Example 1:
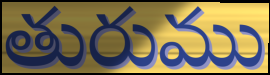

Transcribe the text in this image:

తురుము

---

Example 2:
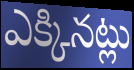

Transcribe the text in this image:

ఎక్కినట్లు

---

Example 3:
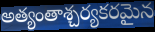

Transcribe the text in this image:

అత్యంతాశ్చర్యకరమైన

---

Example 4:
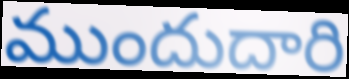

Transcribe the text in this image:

ముందుదారి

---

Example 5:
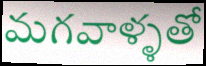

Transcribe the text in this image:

మగవాళ్ళతో